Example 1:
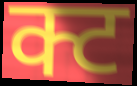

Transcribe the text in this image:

क्ट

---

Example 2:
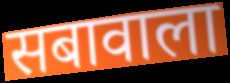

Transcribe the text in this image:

सबावाला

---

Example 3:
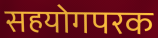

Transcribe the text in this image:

सहयोगपरक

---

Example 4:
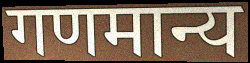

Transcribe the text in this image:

गणमान्‍य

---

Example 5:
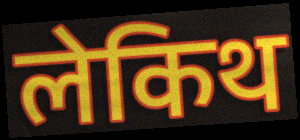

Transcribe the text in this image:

लेकिथ